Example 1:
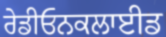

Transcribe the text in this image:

ਰੇਡੀਓਨਕਲਾਈਡ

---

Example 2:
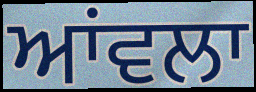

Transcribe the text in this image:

ਆਂਵਲਾ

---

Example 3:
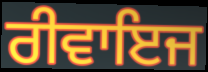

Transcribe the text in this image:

ਰੀਵਾਇਜ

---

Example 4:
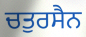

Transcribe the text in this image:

ਚਤੁਰਸੈਨ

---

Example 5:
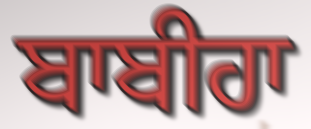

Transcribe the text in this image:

ਬਾਬੀਹਾ